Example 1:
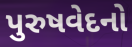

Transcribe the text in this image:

પુરુષવેદનો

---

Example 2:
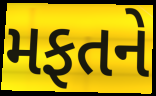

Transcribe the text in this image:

મફતને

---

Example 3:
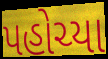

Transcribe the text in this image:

પહોચ્યા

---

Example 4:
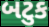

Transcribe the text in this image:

બટુક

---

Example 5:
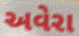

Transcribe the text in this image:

અવેરા